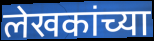
लेखकांच्या